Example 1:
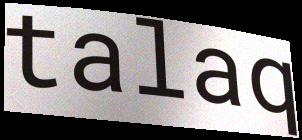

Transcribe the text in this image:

talaq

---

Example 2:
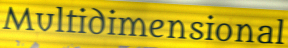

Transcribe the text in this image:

Multidimensional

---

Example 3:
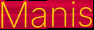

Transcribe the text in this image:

Manis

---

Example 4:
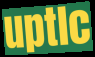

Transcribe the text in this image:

uptlc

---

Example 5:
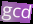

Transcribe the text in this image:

gcd